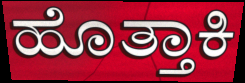
ಹೊತ್ತಾಕಿ